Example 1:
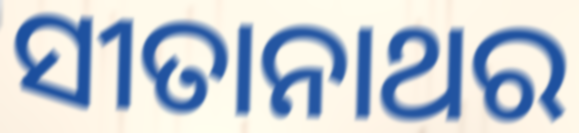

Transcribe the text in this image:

ସୀତାନାଥର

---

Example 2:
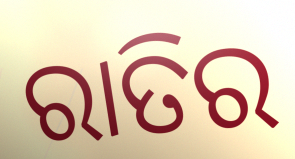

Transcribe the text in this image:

ରାତିର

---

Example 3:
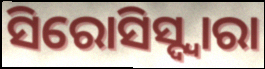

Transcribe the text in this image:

ସିରୋସିସ୍ଦ୍ୱାରା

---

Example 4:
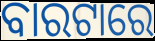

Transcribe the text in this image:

ବାରଟାରେ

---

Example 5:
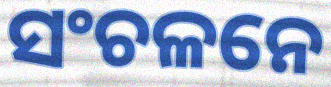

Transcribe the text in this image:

ସଂଚଳନେ